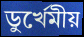
ডুর্খেমীয়